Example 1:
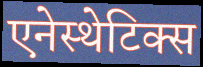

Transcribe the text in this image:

एनेस्थेटिक्स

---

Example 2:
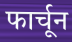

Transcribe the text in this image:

फार्चून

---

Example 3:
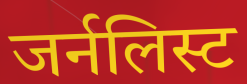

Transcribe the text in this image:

जर्नलिस्ट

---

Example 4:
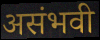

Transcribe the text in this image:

असंभवी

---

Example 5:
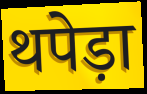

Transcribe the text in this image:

थपेड़ा